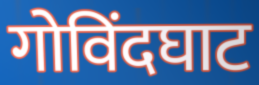
गोविंदघाट